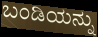
ಬಂಡಿಯನ್ನು